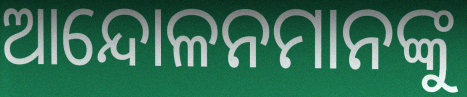
ଆନ୍ଦୋଳନମାନଙ୍କୁ